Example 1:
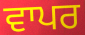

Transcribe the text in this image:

ਵਾਪਰ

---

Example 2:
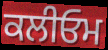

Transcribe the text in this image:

ਕਲੀਓਮ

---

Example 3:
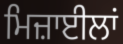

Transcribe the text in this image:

ਮਿਜ਼ਾਈਲਾਂ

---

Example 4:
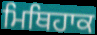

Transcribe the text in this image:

ਮਿਥਿਹਾਕ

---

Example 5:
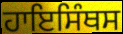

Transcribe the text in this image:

ਹਾਇਸਿੰਥਸ